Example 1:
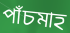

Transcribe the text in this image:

পাঁচমাহ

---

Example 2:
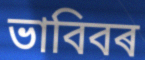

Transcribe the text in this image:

ভাবিবৰ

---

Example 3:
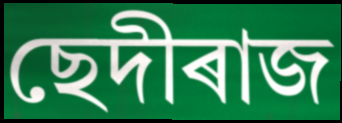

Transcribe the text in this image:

ছেদীৰাজ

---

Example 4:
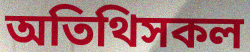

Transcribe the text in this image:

অতিথিসকল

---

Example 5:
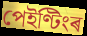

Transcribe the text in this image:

পেইণ্টিংৰ